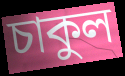
চাকুল